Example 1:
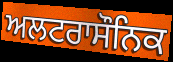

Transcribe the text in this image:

ਅਲਟਰਾਸੌਨਿਕ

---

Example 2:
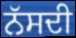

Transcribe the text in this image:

ਨੱਸਦੀ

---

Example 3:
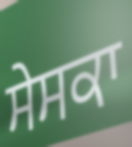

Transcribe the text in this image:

ਸੇਸਕਾ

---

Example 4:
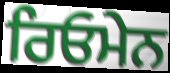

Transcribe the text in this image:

ਰਿਓਮੇਨ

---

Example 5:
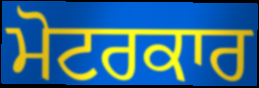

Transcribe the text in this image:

ਮੋਟਰਕਾਰ